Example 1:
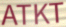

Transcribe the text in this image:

ATKT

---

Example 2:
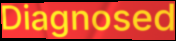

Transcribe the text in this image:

Diagnosed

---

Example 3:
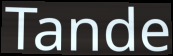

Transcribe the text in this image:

Tande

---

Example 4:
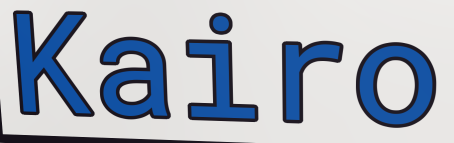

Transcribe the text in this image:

Kairo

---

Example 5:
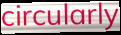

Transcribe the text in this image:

circularly